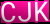
CJK